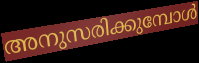
അനുസരിക്കുമ്പോൾ